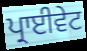
ਪ੍ਰਾਈਵੇਟ